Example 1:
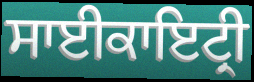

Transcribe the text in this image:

ਸਾਈਕਾਇਟ੍ਰੀ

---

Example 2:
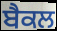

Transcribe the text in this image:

ਬੈਕਲ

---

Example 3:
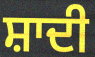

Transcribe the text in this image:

ਸ਼ਾਦੀ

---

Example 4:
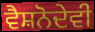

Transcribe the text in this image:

ਵੈਸ਼ਨੋਦੇਵੀ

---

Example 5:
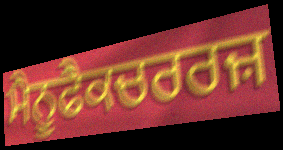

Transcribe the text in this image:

ਮੈਨੂਫੈਕਚਰਰਜ਼